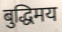
बुद्धिमय